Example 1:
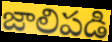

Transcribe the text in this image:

జాలిపడి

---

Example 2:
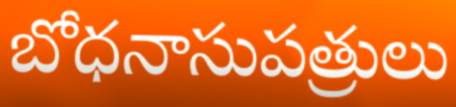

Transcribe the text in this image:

బోధనాసుపత్రులు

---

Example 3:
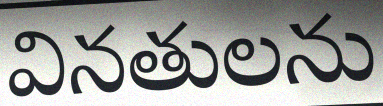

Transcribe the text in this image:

వినతులను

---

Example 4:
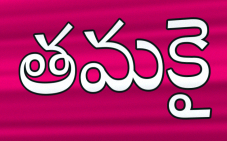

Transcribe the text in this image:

తమకై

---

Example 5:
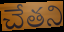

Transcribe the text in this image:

చేతని